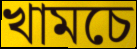
খামচে